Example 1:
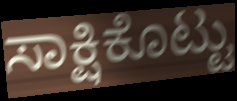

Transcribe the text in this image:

ಸಾಕ್ಷಿಕೊಟ್ಟು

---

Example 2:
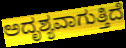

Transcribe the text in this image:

ಅದೃಶ್ಯವಾಗುತ್ತಿದೆ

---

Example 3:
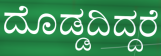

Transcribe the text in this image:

ದೊಡ್ಡದಿದ್ದರೆ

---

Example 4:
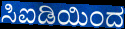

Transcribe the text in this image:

ಸಿಐಡಿಯಿಂದ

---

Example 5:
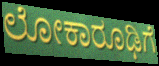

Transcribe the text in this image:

ಲೋಕಾರೂಢಿಗೆ